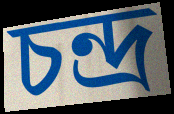
চন্দ্ৰ